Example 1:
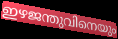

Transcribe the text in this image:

ഇഴജന്തുവിനെയും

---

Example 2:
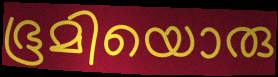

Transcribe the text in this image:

ഭൂമിയൊരു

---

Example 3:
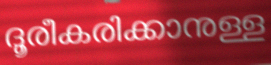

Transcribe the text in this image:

ദൂരീകരിക്കാനുള്ള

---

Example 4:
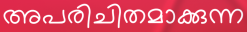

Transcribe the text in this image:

അപരിചിതമാക്കുന്ന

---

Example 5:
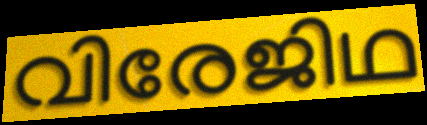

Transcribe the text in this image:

വിരേജിഥ